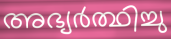
അഭ്യർത്ഥിച്ചു